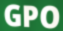
GPO